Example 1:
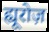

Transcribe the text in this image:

ह्यूरोज़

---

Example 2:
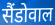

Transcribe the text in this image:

सैंडोवाल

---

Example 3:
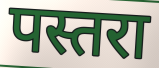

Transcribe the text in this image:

पस्तरा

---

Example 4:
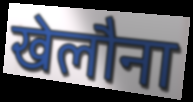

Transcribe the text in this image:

खेलौना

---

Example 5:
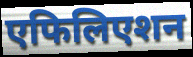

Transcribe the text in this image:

एफिलिएशन